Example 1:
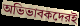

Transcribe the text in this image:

অভিভাবকদেরই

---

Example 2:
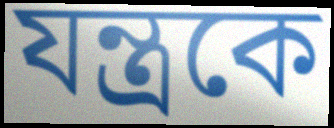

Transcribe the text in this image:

যন্ত্রকে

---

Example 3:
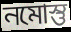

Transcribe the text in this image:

নমোস্তু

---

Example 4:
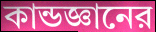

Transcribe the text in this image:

কান্ডজ্ঞানের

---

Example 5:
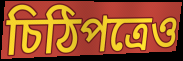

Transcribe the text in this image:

চিঠিপত্রেও